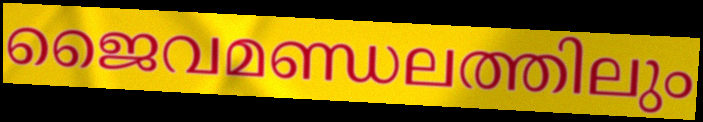
ജൈവമണ്ഡലത്തിലും